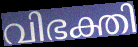
വിഭക്തി